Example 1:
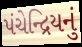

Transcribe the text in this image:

પંચેન્દ્રિયનું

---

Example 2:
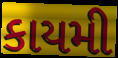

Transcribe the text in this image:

કાયમી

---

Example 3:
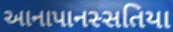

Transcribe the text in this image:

આનાપાનસ્સતિયા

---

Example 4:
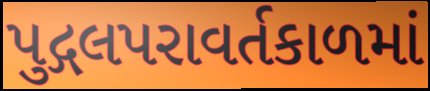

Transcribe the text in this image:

પુદ્ગલપરાવર્તકાળમાં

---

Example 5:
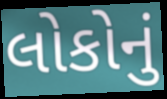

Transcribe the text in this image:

લોકોનું